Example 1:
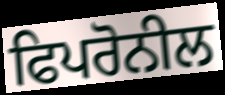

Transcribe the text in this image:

ਫਿਪਰੋਨੀਲ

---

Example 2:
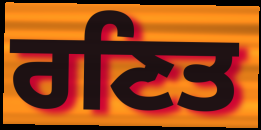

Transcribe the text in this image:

ਰਣਿਤ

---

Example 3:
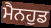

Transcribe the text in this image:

ਮੈਨਹੁਡ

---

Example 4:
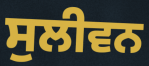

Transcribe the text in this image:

ਸੁਲੀਵਨ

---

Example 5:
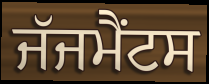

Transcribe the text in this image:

ਜੱਜਮੈਂਟਸ